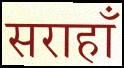
सराहाँ